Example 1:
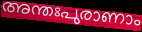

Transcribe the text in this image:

അന്തഃപുരാണാം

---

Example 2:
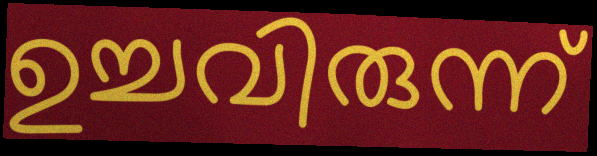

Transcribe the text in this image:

ഉച്ചവിരുന്ന്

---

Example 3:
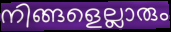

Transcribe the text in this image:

നിങ്ങളെല്ലാരും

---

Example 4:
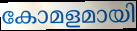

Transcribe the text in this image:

കോമളമായി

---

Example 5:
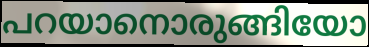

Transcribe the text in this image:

പറയാനൊരുങ്ങിയോ